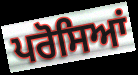
ਪਰੋਸਿਆਂ